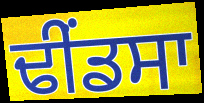
ਢੀੰਂਡਸਾ